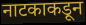
नाटकाकडून